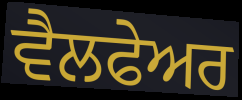
ਵੈਲਫੇਅਰ